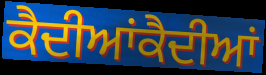
ਕੈਦੀਆਂਕੈਦੀਆਂ